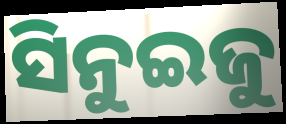
ସିନୁଇଜୁ